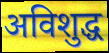
अविशुद्ध